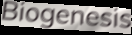
Biogenesis